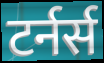
टर्नर्स